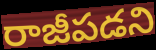
రాజీపడని